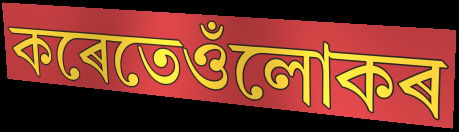
কৰেতেওঁলোকৰ